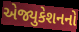
એજ્યુકેશનનો